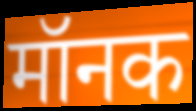
मॉनक